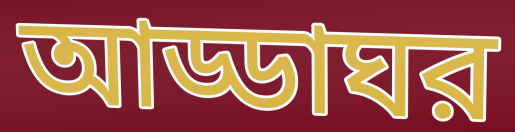
আড্ডাঘর